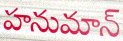
హనుమాన్